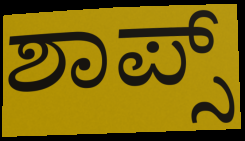
ಶಾಪ್ಸ್